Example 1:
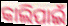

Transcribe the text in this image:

କାଲିପାଇଁ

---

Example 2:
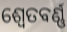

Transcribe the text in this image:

ଶ୍ୱେତବର୍ଣ୍ଣ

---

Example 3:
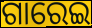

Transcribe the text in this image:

ଗାରେଇ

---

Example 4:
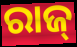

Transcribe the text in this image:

ରାଜ୍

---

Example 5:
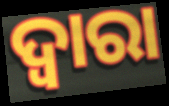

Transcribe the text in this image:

ଦ୍ଵାରା